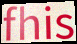
fhis